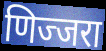
णिज्जरा